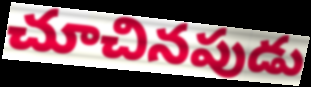
చూచినపుడు